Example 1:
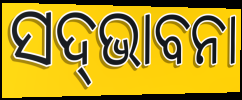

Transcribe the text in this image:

ସଦ୍‌ଭାବନା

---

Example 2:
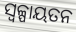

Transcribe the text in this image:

ସ୍ୱଳ୍ପାୟତନ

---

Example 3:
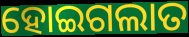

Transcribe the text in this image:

ହୋଇଗଲାତ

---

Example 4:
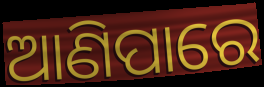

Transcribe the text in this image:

ଆଣିପାରେ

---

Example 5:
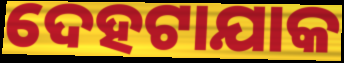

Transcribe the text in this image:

ଦେହଟାଯାକ